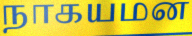
நாகயமன